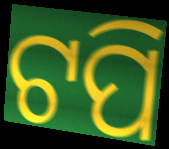
ଟପି